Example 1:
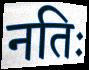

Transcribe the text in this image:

नतिः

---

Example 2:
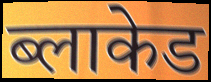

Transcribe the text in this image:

ब्लाकेड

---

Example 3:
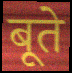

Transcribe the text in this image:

बूते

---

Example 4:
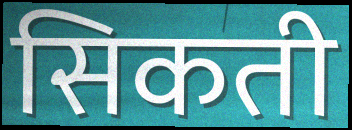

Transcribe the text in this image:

सिकती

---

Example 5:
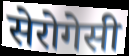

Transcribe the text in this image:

सेरोगेसी